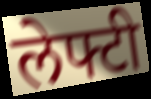
लेफ्टी